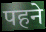
पहने